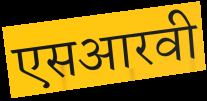
एसआरवी